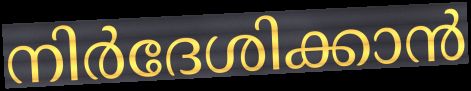
നിർദേശിക്കാൻ